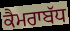
ਕੈਮਰਾਬੱਧ